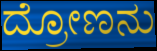
ದ್ರೋಣನು